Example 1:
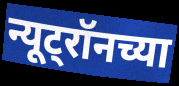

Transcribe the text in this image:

न्यूट्रॉनच्या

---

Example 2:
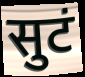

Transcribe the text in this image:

सुटं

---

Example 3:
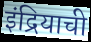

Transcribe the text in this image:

इंद्रियाची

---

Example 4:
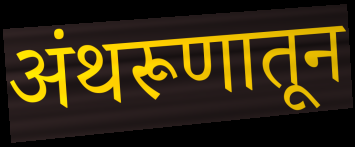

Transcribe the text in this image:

अंथरूणातून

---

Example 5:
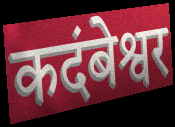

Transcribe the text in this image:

कदंबेश्वर